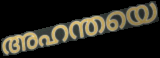
അഹന്തയെ